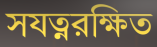
সযত্নরক্ষিত